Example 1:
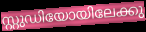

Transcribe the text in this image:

സ്റ്റുഡിയോയിലേക്കു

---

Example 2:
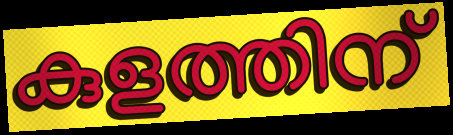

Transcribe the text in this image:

കുളത്തിന്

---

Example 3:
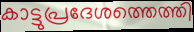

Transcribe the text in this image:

കാട്ടുപ്രദേശത്തെത്തി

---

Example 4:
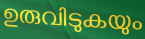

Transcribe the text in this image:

ഉരുവിടുകയും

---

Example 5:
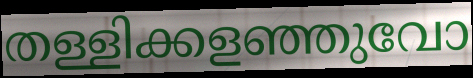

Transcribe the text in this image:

തള്ളിക്കളഞ്ഞുവോ